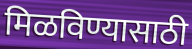
मिळविण्यासाठी